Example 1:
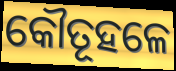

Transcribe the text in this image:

କୌତୂହଳେ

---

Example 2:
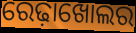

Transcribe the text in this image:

ରେଢ଼ାଖୋଲର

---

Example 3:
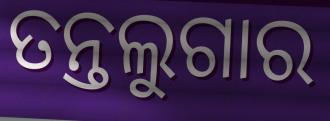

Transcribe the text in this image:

ତନ୍ତଲୁଗାର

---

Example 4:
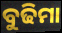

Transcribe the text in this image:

ବୁଢିମା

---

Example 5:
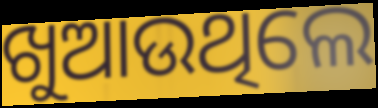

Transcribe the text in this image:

ଖୁଆଉଥିଲେ